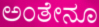
ಅಂತೇನೂ